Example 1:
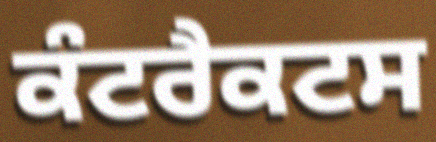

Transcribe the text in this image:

ਕੰਟਰੈਕਟਸ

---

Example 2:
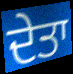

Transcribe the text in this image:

ਦੇਤਾ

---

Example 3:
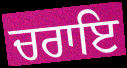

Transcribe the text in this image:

ਚਰਾਇ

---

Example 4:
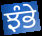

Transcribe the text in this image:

ਝੰਭੇ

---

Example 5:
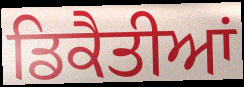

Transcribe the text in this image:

ਡਿਕੈਤੀਆਂ